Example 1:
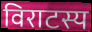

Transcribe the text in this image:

विराटस्य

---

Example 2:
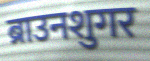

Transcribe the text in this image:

ब्राउनशुगर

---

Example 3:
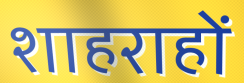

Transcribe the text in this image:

शाहराहों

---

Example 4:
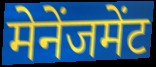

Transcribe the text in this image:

मेनेंजमेंट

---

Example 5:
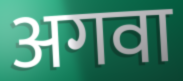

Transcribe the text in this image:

अगवा